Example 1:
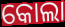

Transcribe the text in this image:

କୋଲା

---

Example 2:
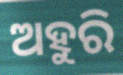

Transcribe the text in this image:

ଅହୁରି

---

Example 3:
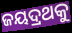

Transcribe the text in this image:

ଜୟଦ୍ରଥକୁ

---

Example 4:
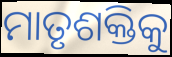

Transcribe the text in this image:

ମାତୃଶକ୍ତିକୁ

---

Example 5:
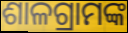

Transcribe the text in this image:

ଶାଳଗ୍ରାମଙ୍କ